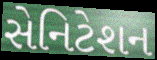
સેનિટેશન